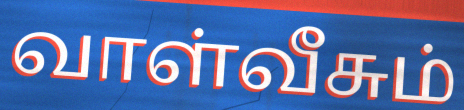
வாள்வீசும்